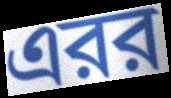
এরর